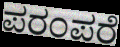
ಪರಂಪರೆ